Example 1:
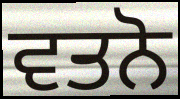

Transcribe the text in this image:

ਵਤਨੋ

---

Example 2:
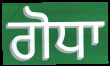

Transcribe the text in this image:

ਗੋਧਾ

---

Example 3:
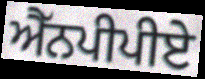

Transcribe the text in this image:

ਐੱਨਪੀਪੀਏ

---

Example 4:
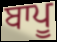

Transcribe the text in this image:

ਬਾਪੂ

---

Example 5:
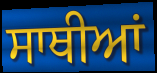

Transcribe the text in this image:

ਸਾਥੀਆਂ